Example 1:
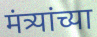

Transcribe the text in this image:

मंत्र्यांच्या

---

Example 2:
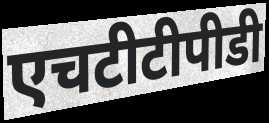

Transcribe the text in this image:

एचटीटीपीडी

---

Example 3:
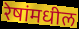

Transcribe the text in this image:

रेषांमधील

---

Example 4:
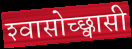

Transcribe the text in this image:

श्वासोच्छ्वासी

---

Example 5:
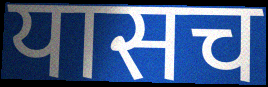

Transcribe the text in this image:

यासच